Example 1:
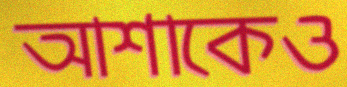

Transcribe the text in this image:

আশাকেও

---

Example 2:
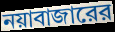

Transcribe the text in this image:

নয়াবাজারের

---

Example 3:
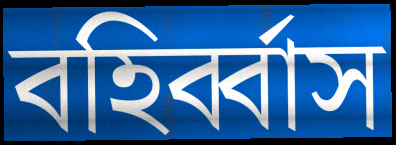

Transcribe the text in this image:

বহির্ব্বাস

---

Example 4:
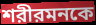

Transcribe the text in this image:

শরীরমনকে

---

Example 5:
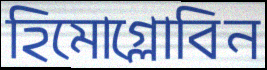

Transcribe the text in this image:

হিমোগ্লোবিন